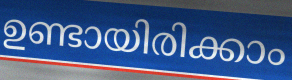
ഉണ്ടായിരിക്കാം